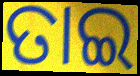
ତାଇ